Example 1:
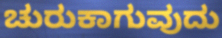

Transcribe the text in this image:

ಚುರುಕಾಗುವುದು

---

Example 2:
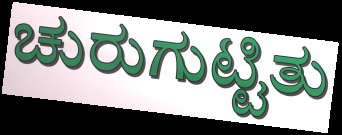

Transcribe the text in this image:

ಚುರುಗುಟ್ಟಿತು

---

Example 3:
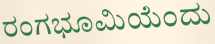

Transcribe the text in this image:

ರಂಗಭೂಮಿಯೆಂದು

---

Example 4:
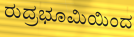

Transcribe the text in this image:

ರುದ್ರಭೂಮಿಯಿಂದ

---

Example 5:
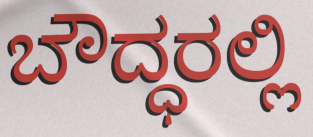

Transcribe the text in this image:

ಬೌದ್ಧರಲ್ಲಿ